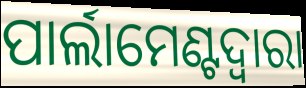
ପାର୍ଲାମେଣ୍ଟଦ୍ୱାରା